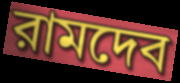
রামদেব